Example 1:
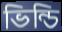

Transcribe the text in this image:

ভিন্ডি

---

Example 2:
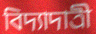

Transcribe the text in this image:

বিদ্যাদাত্রী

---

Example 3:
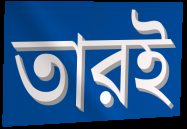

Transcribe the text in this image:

তারই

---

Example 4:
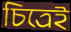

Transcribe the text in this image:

চিত্রেই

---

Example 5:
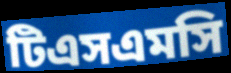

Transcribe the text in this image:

টিএসএমসি